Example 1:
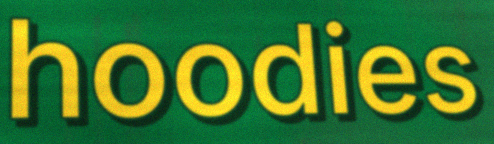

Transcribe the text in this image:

hoodies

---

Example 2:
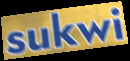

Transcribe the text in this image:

sukwi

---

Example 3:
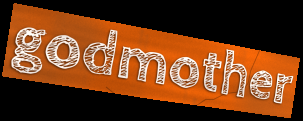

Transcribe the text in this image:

godmother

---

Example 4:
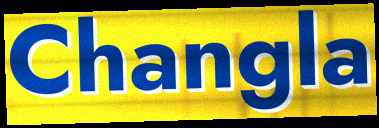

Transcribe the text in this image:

Changla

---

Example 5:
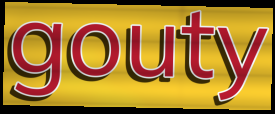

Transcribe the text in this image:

gouty